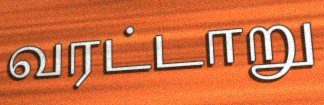
வரட்டாறு